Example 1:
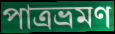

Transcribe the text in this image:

পাত্রভ্রমণ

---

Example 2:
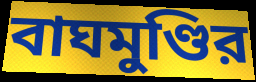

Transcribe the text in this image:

বাঘমুণ্ডির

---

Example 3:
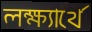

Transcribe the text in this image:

লক্ষ্যার্থে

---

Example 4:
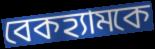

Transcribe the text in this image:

বেকহ্যামকে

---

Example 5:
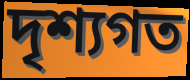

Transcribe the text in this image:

দৃশ্যগত